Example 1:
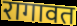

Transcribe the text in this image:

रागावत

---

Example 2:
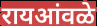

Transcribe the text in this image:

रायआंवळे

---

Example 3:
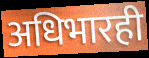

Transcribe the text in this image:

अधिभारही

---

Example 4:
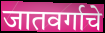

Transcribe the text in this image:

जातवर्गाचे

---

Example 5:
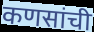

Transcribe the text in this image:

कणसांची